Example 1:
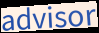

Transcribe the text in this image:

advisor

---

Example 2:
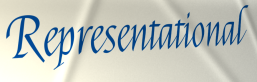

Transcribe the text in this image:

Representational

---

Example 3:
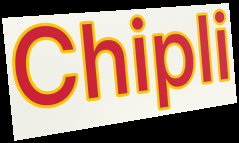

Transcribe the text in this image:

Chipli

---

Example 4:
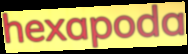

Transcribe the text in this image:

hexapoda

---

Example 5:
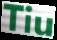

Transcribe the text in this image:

Tiu